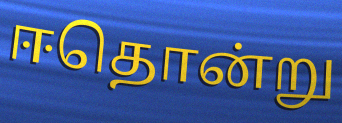
ஈதொன்று